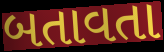
બતાવતા